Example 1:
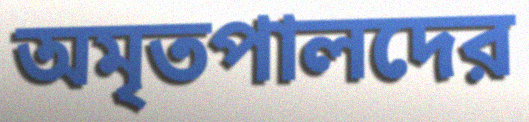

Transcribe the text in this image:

অমৃতপালদের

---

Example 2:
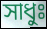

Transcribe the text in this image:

সাধুঃ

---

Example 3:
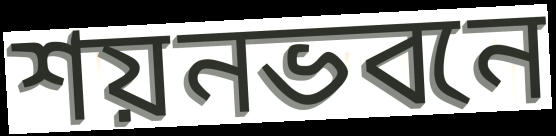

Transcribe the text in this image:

শয়নভবনে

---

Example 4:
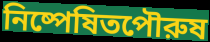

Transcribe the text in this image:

নিষ্পেষিতপৌরুষ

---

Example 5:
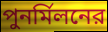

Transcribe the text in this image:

পুনর্মিলনের